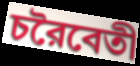
চরৈবেতী